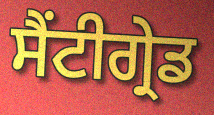
ਸੈਂਟੀਗ੍ਰੇਡ